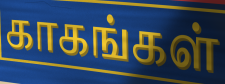
காகங்கள்